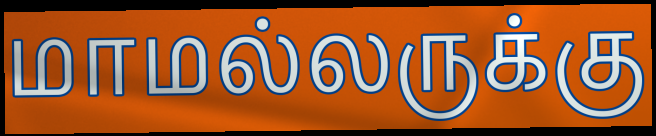
மாமல்லருக்கு